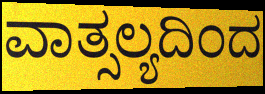
ವಾತ್ಸಲ್ಯದಿಂದ